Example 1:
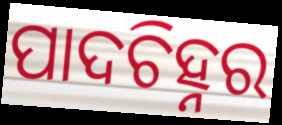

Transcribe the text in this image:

ପାଦଚିହ୍ନର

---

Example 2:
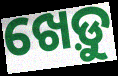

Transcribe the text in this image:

ଖେଡ଼ୁ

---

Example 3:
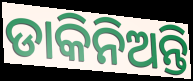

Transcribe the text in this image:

ଡାକିନିଅନ୍ତି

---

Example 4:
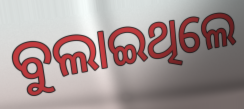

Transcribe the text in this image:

ବୁଲାଇଥିଲେ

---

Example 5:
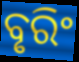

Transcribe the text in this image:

ବୃରିଂ